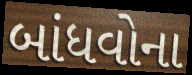
બાંધવોના